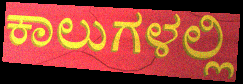
ಕಾಲುಗಳಲ್ಲಿ